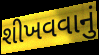
શીખવવાનું